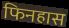
फिनहास